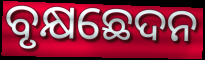
ବୃକ୍ଷଛେଦନ